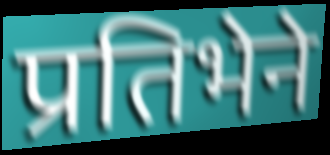
प्रतिभेने